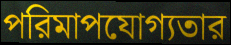
পরিমাপযোগ্যতার